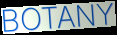
BOTANY